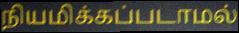
நியமிக்கப்படாமல்